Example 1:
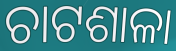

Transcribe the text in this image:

ଚାଟଶାଳା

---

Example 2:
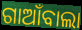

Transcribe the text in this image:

ଗାଆଁବାଲା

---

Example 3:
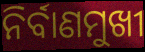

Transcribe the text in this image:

ନିର୍ବାଣମୁଖୀ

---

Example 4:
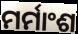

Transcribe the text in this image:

ମର୍ମାଂଶ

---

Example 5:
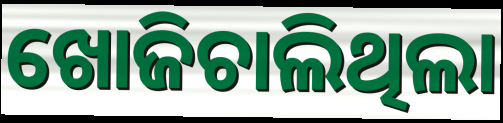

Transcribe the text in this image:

ଖୋଜିଚାଲିଥିଲା